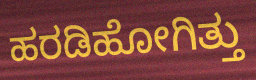
ಹರಡಿಹೋಗಿತ್ತು